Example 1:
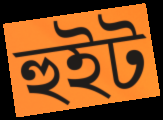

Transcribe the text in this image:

হুইট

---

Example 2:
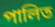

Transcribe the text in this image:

পালিত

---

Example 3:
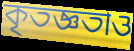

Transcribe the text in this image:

কৃতজ্ঞতাও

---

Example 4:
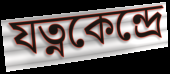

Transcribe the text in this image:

যত্নকেন্দ্রে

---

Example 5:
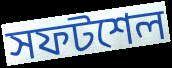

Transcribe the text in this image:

সফটশেল